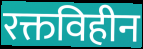
रक्तविहीन